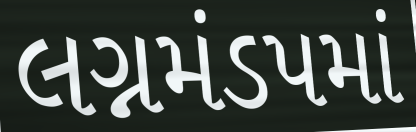
લગ્નમંડપમાં